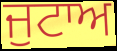
ਜੁਟਾਅ